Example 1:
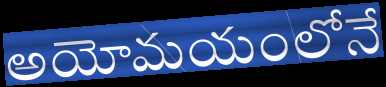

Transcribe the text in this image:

అయోమయంలోనే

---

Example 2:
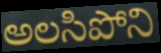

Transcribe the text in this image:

అలసిపోని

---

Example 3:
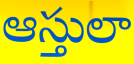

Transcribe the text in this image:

ఆస్తులా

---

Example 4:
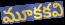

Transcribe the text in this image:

మూకకవి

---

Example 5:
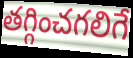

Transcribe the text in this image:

తగ్గించగలిగే